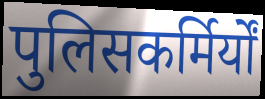
पुलिसकर्मिर्यों